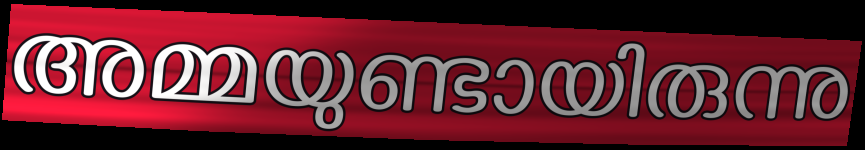
അമ്മയുണ്ടായിരുന്നു